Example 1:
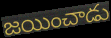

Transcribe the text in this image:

జయించాడు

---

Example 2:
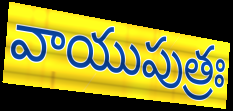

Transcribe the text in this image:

వాయుపుత్రః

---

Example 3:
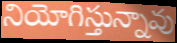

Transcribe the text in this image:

నియోగిస్తున్నావు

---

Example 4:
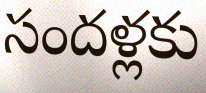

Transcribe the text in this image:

సందళ్లకు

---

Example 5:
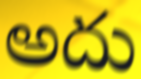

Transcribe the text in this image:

అదు